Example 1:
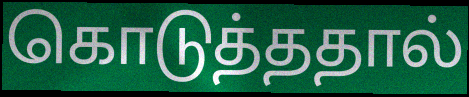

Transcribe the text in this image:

கொடுத்ததால்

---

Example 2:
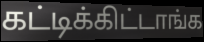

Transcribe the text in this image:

கட்டிக்கிட்டாங்க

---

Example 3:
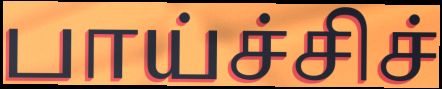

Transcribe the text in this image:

பாய்ச்சிச்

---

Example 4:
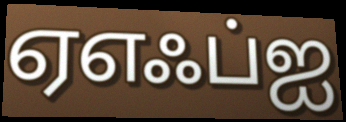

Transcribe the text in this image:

ஏஎஃப்ஐ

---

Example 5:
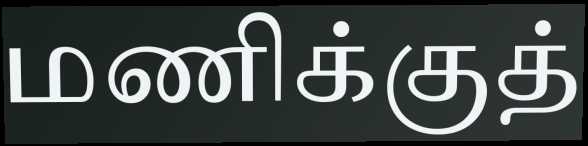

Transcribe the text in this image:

மணிக்குத்